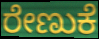
ರೇಣುಕೆ